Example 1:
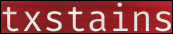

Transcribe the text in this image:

txstains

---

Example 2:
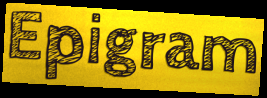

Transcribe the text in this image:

Epigram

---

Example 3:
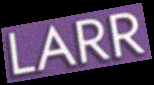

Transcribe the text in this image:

LARR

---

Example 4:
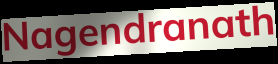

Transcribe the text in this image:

Nagendranath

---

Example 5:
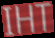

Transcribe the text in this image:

IHT